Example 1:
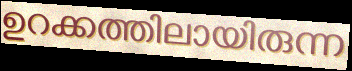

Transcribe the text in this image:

ഉറക്കത്തിലായിരുന്ന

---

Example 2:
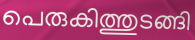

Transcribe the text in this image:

പെരുകിത്തുടങ്ങി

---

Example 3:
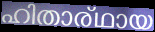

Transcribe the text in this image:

ഹിതാര്ഥായ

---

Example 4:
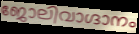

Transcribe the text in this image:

ജോലിവാഗ്ദാനം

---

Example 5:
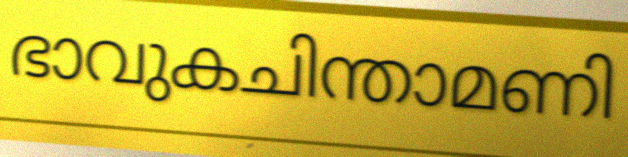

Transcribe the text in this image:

ഭാവുകചിന്താമണി